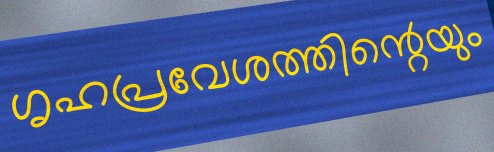
ഗൃഹപ്രവേശത്തിന്റെയും